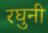
रघुनी